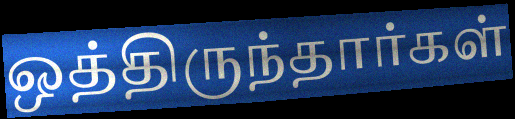
ஒத்திருந்தார்கள்